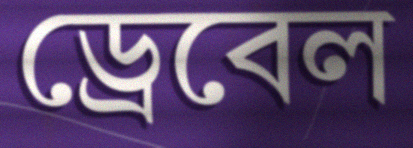
ড্রেবেল